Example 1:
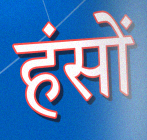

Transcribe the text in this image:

हंसों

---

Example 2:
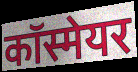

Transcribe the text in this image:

कॉस्मेयर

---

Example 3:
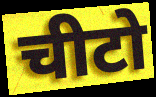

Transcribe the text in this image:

चीटो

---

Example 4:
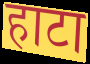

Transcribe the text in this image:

हाटा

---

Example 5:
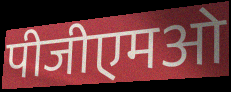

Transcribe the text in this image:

पीजीएमओ